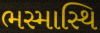
ભસ્માસ્થિ